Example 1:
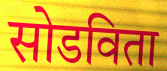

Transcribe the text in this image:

सोडविता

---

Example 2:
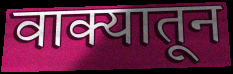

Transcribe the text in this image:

वाक्यातून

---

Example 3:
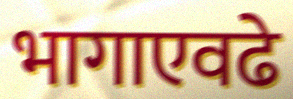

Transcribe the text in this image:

भागाएवढे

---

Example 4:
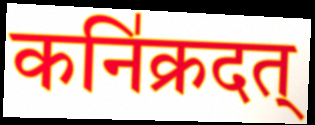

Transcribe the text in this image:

कनि॑क्रदत्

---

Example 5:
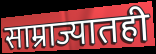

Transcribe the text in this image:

साम्राज्यातही